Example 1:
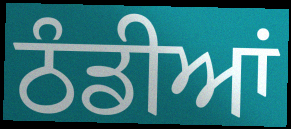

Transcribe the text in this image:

ਠੰਡੀਆਂ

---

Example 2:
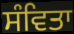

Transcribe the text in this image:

ਸੰਵਿਤਾ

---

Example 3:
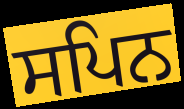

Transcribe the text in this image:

ਸਪਿਨ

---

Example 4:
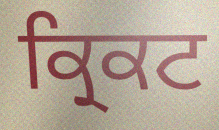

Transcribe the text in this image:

ਕ੍ਰਿਕਟ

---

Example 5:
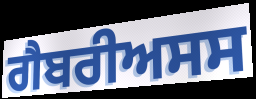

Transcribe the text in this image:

ਗੈਬਰੀਅਸਸ